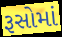
રૂસોમાં